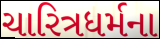
ચારિત્રધર્મના